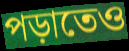
পড়াতেও